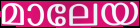
മാലേയ